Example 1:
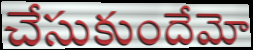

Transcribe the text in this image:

చేసుకుందేమో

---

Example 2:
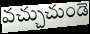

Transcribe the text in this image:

వచ్చుచుండె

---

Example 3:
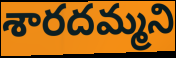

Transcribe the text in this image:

శారదమ్మని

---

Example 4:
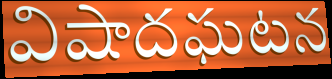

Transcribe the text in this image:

విషాదఘటన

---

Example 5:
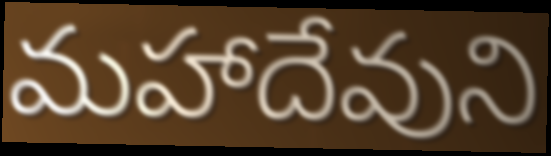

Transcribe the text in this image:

మహాదేవుని